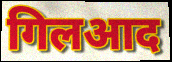
गिलआद